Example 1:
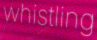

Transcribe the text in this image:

whistling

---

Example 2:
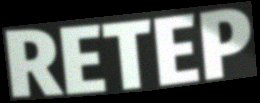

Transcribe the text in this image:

RETEP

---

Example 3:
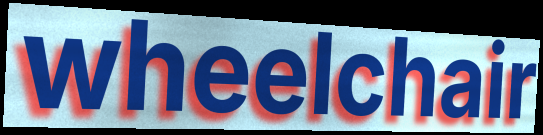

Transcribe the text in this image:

wheelchair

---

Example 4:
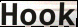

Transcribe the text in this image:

Hook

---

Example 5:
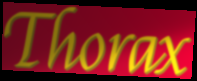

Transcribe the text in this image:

Thorax